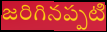
జరిగినప్పటి